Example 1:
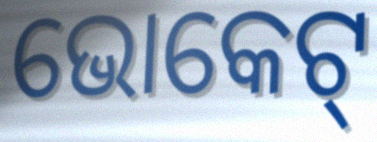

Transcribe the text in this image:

ଭୋକେଟ୍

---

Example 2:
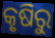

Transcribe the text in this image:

କୃଷିରୁ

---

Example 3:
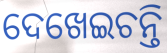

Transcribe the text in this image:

ଦେଖେଇଚନ୍ତି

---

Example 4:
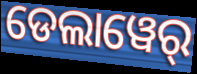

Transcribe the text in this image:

ଡେଲାୱେର୍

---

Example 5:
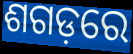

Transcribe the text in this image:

ଶଗଡ଼ରେ